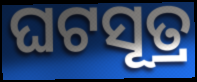
ଘଟସୂତ୍ର